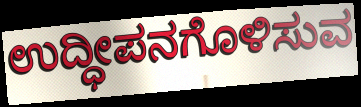
ಉದ್ಧೀಪನಗೊಳಿಸುವ